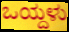
ಒಯ್ದಳು